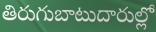
తిరుగుబాటుదారుల్లో